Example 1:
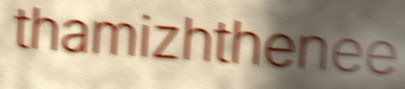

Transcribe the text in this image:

thamizhthenee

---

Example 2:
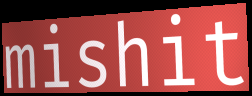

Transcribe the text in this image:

mishit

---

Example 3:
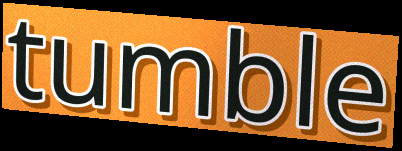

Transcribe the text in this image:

tumble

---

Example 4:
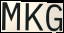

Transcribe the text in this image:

MKG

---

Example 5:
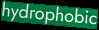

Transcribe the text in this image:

hydrophobic